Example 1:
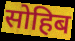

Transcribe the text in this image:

सोहिब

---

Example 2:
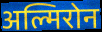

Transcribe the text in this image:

अल्मिरोन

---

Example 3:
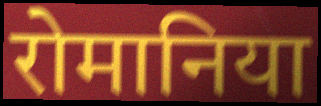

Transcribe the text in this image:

रोमानिया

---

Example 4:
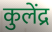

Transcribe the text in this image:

कुलेंद्र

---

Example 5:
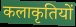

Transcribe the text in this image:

कलाकृतियों